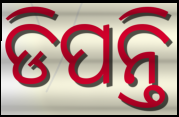
ଡିପନ୍ତି